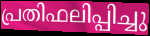
പ്രതിഫലിപ്പിച്ചു